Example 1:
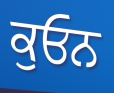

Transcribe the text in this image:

ਕੁਓਨ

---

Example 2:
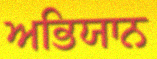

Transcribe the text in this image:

ਅਭਿਯਾਨ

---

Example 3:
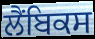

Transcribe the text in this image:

ਲੈਂਬਿਕਸ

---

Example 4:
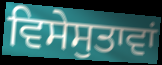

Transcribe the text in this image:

ਵਿਸੇਸੁਤਾਵਾਂ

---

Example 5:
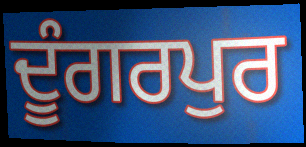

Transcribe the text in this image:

ਦੂੰਗਰਪੁਰ